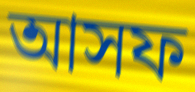
আসফ